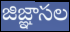
జిజ్ఞాసల